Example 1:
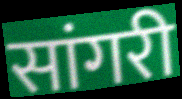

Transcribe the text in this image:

सांगरी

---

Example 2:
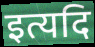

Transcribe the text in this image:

इत्यदि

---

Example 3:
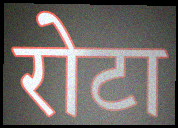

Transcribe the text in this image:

रोटा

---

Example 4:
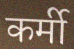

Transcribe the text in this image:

कर्मी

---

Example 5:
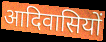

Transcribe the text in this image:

आदिवासियों